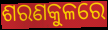
ଶରଣକୁଳରେ